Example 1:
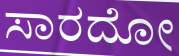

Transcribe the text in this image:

ಸಾರದೋ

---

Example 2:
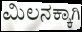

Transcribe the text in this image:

ಮಿಲನಕ್ಕಾಗಿ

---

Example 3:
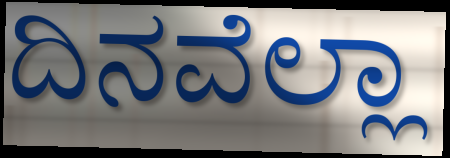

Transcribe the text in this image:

ದಿನವೆಲ್ಲಾ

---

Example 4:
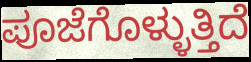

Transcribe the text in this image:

ಪೂಜೆಗೊಳ್ಳುತ್ತಿದೆ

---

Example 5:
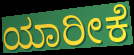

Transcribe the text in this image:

ಯಾರೀಕೆ